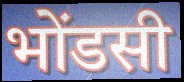
भोंडसी